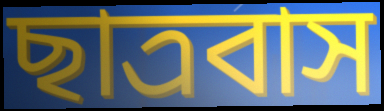
ছাত্রবাস